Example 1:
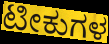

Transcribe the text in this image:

ಟೀಕುಗಳ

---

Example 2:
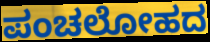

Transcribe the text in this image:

ಪಂಚಲೋಹದ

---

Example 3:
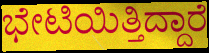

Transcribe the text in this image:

ಭೇಟಿಯಿತ್ತಿದ್ದಾರೆ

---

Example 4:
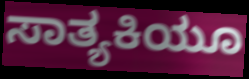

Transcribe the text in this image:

ಸಾತ್ಯಕಿಯೂ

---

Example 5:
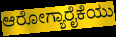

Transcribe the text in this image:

ಆರೋಗ್ಯಾರೈಕೆಯು